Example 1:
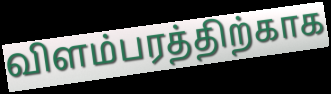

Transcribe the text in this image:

விளம்பரத்திற்காக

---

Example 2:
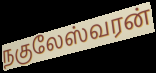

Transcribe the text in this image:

நகுலேஸ்வரன்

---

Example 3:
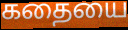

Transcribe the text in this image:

கதையை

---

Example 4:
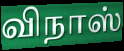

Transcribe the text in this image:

விநாஸ்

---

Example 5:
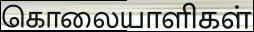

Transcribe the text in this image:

கொலையாளிகள்